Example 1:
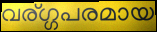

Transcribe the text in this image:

വര്ഗ്ഗപരമായ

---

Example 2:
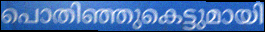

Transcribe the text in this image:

പൊതിഞ്ഞുകെട്ടുമായി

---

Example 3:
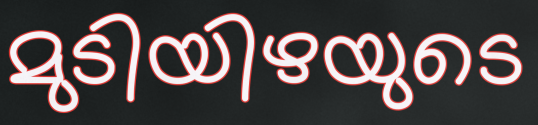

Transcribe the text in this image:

മുടിയിഴയുടെ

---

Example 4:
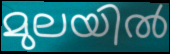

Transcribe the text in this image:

മുലയിൽ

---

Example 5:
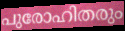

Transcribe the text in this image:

പുരോഹിതരും